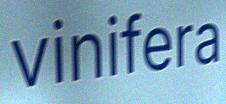
vinifera